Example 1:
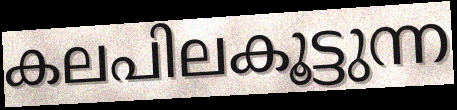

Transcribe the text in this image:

കലപിലകൂട്ടുന്ന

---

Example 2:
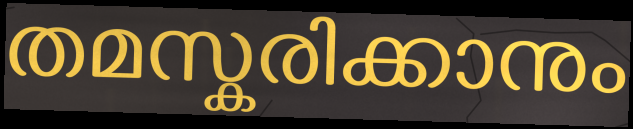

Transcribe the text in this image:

തമസ്കരിക്കാനും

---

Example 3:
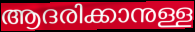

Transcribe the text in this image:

ആദരിക്കാനുള്ള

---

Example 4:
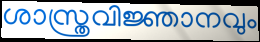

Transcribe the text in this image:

ശാസ്ത്രവിജ്ഞാനവും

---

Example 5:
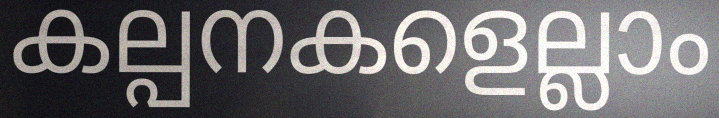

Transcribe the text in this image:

കല്പനകളെല്ലാം